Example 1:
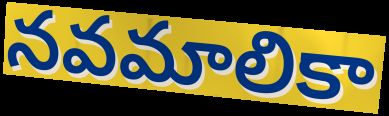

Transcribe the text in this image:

నవమాలికా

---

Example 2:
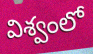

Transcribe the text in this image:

విశ్వంలో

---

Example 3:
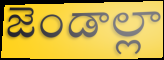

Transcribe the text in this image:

జెండాల్లా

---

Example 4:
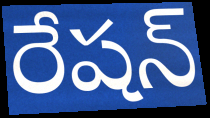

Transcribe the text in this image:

రేషన్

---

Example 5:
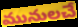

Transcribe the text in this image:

మునులచే